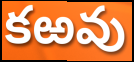
కఱవు